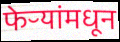
फेऱ्यांमधून